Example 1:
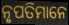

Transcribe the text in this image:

ନୃପତିମାନେ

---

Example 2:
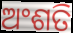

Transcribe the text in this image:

ଅଂଶତି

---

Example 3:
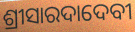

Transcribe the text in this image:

ଶ୍ରୀସାରଦାଦେବୀ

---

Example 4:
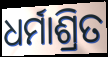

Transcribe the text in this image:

ଧର୍ମାଶ୍ରିତ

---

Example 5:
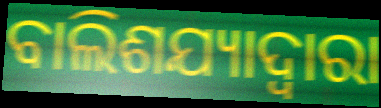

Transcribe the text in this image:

ବାଲିଶଯ୍ୟାଦ୍ଵାରା